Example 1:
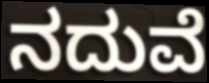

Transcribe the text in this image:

ನದುವೆ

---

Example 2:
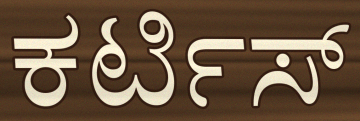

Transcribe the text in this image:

ಕರ್ಟಿಸ್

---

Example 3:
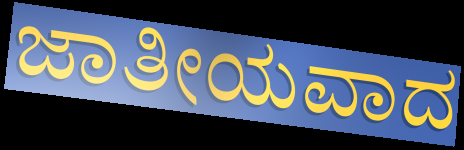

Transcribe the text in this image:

ಜಾತೀಯವಾದ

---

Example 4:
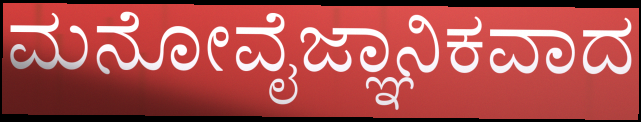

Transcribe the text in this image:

ಮನೋವೈಜ್ಞಾನಿಕವಾದ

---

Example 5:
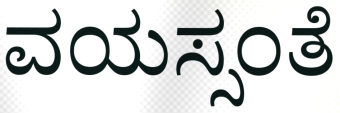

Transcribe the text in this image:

ವಯಸ್ಸಂತೆ